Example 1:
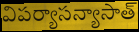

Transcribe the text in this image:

విపర్యాసన్యాసాత్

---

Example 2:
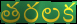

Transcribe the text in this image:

తరలక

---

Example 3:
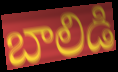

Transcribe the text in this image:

బాలిడి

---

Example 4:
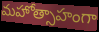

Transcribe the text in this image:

మహోత్సాహంగా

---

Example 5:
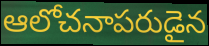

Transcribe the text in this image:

ఆలోచనాపరుడైన